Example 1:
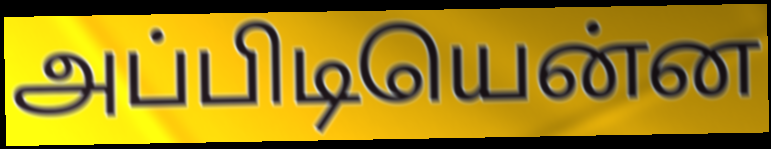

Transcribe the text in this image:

அப்பிடியென்ன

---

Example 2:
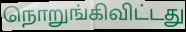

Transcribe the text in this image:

நொறுங்கிவிட்டது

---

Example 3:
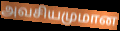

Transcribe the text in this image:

அவசியமுமான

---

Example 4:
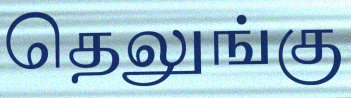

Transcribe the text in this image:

தெலுங்கு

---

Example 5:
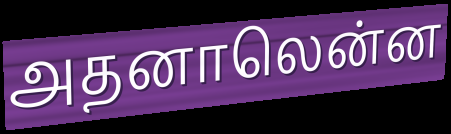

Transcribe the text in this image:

அதனாலென்ன